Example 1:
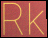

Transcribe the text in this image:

Rk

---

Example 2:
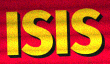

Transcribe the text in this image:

ISIS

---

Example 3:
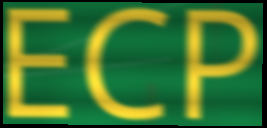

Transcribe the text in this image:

ECP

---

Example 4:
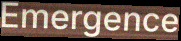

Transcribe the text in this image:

Emergence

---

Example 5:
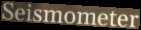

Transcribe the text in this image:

Seismometer